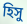
হিসু